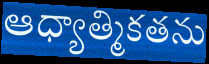
ఆధ్యాత్మికతను